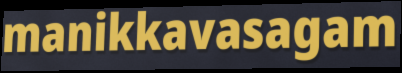
manikkavasagam